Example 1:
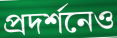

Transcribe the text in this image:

প্রদর্শনেও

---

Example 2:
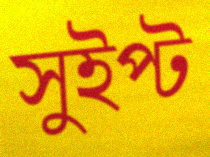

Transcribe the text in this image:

সুইপ্ট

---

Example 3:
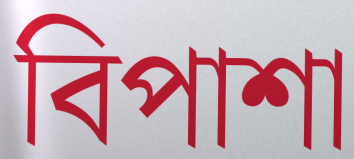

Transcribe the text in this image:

বিপাশা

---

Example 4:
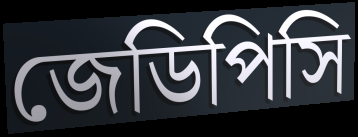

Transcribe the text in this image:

জেডিপিসি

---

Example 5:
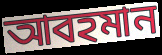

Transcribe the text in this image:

আবহমান